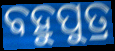
ବହୁପୁତ୍ର